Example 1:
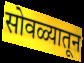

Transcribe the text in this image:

सोवळ्यातून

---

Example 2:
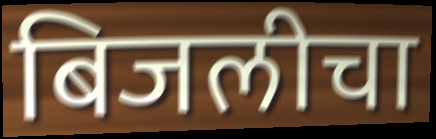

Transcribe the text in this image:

बिजलीचा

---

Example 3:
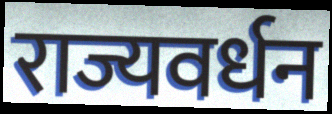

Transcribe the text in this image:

राज्यवर्धन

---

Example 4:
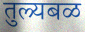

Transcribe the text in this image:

तुल्यबळ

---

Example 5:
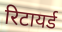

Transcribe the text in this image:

रिटायर्ड